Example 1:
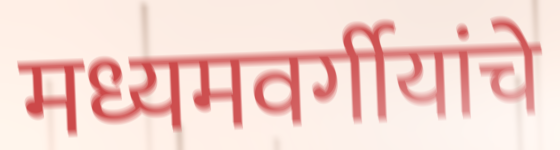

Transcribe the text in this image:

मध्यमवर्गीयांचे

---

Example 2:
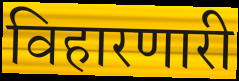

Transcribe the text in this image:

विहारणारी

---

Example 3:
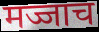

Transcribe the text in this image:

मज्जाच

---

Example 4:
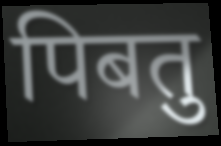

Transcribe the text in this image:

पिबतु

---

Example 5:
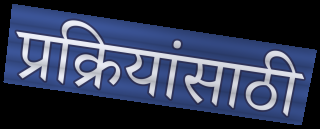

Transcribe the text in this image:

प्रक्रियांसाठी